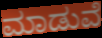
ಮಾಡುವೆ